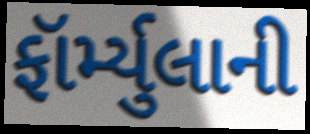
ફૉર્મ્યુલાની